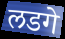
लडगे